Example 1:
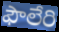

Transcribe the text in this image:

ఫౌలేరి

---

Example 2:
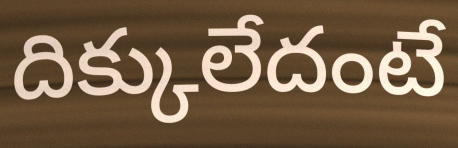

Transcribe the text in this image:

దిక్కులేదంటే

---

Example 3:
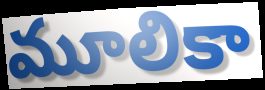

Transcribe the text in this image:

మూలికా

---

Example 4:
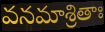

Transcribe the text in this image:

వనమాశ్రితాః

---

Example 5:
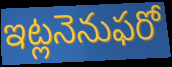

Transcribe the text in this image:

ఇట్లనెనుఫరో